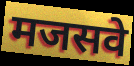
मजसवे